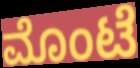
ಮೊಂಟೆ